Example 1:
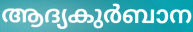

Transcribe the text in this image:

ആദ്യകുർബാന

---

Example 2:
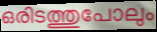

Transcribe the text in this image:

ഒരിടത്തുപോലും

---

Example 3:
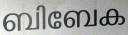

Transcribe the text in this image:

ബിബേക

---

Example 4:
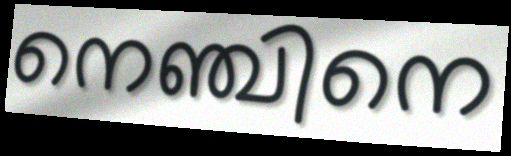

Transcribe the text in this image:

നെഞ്ചിനെ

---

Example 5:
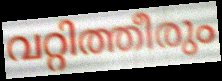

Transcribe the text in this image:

വറ്റിത്തീരും